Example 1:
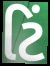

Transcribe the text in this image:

ટિં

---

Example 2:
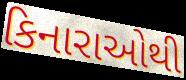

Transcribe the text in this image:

કિનારાઓથી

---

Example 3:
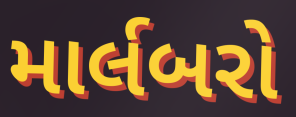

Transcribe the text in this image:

માર્લબરો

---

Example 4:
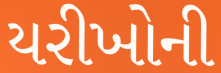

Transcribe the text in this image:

યરીખોની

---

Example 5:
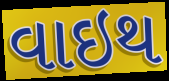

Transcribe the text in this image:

વાઇથ